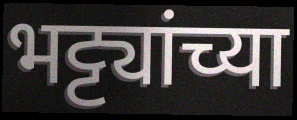
भट्ट्यांच्या